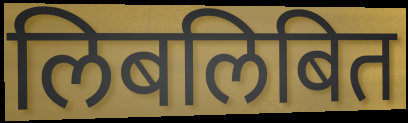
लिबलिबित